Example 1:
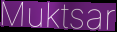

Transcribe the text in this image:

Muktsar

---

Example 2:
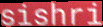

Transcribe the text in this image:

sishri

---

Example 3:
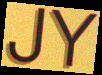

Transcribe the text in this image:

JY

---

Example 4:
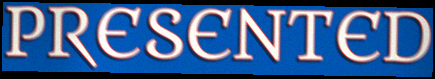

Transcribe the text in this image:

PRESENTED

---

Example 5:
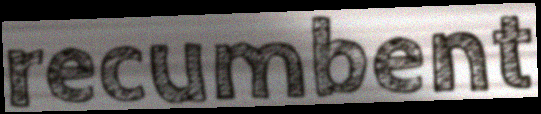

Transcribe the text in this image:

recumbent